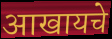
आखायचे